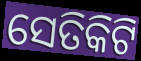
ସେତିକିଟି